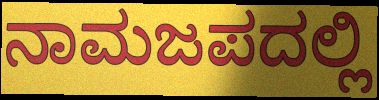
ನಾಮಜಪದಲ್ಲಿ